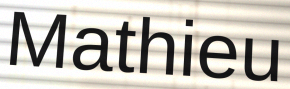
Mathieu